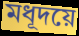
মধূদয়ে